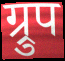
ग्र्रुप